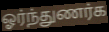
ஓர்ந்துணர்க